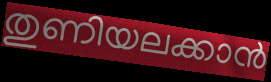
തുണിയലക്കാൻ